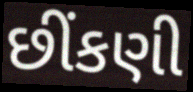
છીંકણી